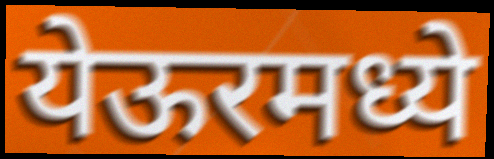
येऊरमध्ये